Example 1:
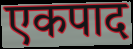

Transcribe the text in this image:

एकपाद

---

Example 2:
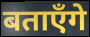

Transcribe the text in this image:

बताएँगे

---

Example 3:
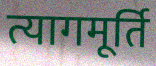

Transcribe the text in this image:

त्यागमूर्ति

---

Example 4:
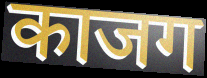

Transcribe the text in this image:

काजग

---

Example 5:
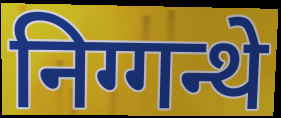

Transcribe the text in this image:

निग्गन्थे